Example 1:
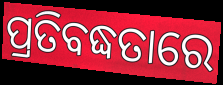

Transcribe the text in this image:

ପ୍ରତିବଦ୍ଧତାରେ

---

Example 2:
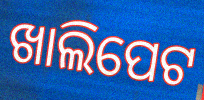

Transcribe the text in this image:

ଖାଲିପେଟ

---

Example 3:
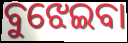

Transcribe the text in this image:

ବୁଝେଇବା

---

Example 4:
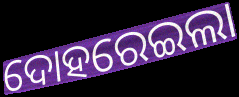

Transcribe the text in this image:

ଦୋହରେଇଲା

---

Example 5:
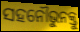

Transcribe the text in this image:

ସହନୌଭୁନକ୍ତୁ